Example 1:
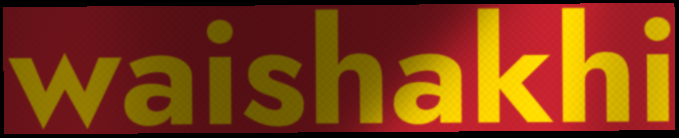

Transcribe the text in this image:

waishakhi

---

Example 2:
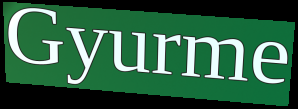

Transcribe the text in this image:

Gyurme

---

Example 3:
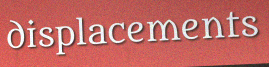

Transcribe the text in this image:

displacements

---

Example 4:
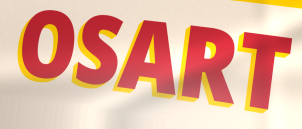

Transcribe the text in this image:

OSART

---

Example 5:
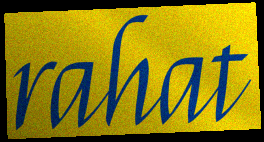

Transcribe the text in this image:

rahat